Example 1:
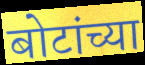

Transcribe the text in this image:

बोटांच्या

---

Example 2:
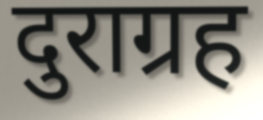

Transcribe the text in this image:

दुराग्रह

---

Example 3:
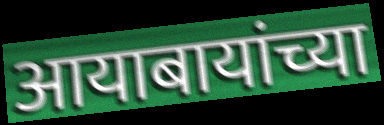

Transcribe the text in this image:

आयाबायांच्या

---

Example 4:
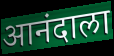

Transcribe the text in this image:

आनंदाला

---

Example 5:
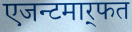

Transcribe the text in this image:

एजन्टमार्फत